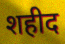
शहीद